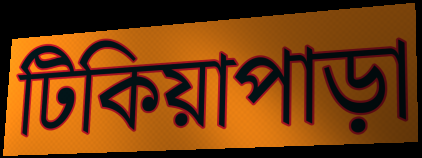
টিকিয়াপাড়া